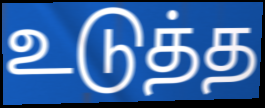
உடுத்த